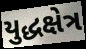
યુદ્ધક્ષેત્ર